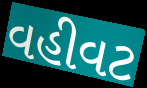
વહીવટ